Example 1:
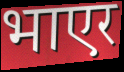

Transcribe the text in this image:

भाएर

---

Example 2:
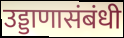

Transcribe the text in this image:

उड्डाणासंबंधी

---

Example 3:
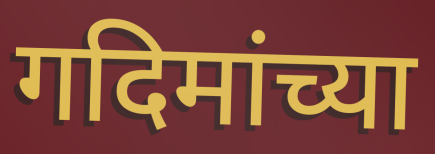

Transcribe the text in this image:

गदिमांच्या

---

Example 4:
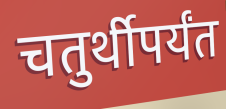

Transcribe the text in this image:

चतुर्थीपर्यंत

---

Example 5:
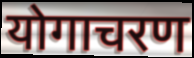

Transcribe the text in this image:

योगाचरण